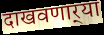
दाखवणार्या